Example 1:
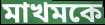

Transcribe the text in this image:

মাখমকে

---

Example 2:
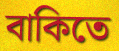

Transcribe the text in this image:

বাকিতে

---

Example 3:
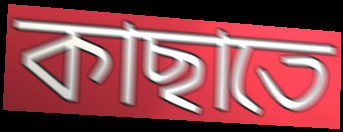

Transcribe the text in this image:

কাছাতে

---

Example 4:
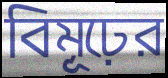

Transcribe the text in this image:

বিমূঢ়ের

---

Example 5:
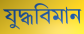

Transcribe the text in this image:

যুদ্ধবিমান